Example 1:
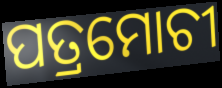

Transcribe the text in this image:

ପତ୍ରମୋଚୀ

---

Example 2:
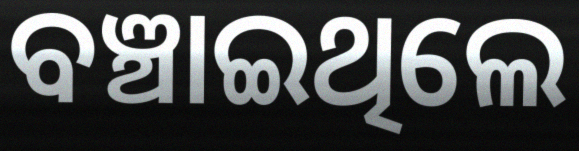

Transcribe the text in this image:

ବଞ୍ଚାଇଥିଲେ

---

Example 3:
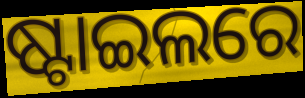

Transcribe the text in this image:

ଷ୍ଟାଇଲରେ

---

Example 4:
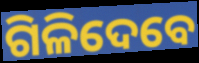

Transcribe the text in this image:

ଗିଳିଦେବେ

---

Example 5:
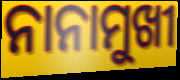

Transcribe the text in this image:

ନାନାମୁଖୀ